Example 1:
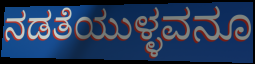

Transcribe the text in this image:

ನಡತೆಯುಳ್ಳವನೂ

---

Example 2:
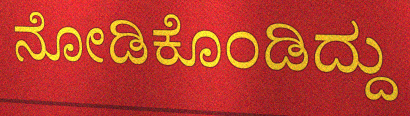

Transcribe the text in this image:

ನೋಡಿಕೊಂಡಿದ್ದು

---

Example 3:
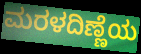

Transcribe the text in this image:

ಮರಳದಿಣ್ಣೆಯ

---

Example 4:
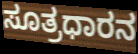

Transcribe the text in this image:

ಸೂತ್ರಧಾರನ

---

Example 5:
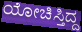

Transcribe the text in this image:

ಯೋಚಿಸ್ತಿದ್ದ